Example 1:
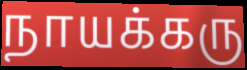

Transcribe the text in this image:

நாயக்கரு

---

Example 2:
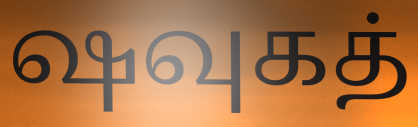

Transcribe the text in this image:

ஷவுகத்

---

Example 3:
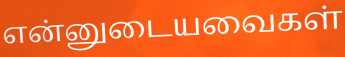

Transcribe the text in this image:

என்னுடையவைகள்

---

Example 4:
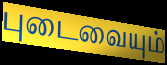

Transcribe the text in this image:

புடைவையும்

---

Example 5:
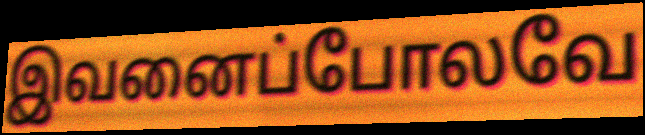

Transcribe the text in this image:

இவனைப்போலவே